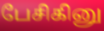
பேசிகினு